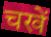
चखें